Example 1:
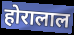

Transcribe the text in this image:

होरालाल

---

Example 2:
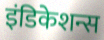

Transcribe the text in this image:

इंडिकेशन्स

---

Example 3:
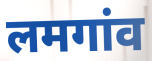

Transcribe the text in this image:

लमगांव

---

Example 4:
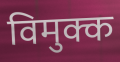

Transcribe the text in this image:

विमुक्क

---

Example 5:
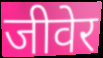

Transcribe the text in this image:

जीवेर